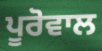
ਪੂਰੋਵਾਲ